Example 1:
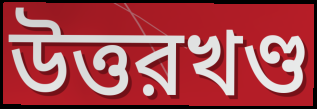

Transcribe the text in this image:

উত্তরখণ্ড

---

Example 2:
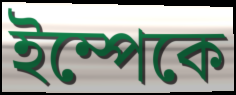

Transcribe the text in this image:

ইম্পেকে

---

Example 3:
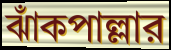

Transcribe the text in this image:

ঝাঁকপাল্লার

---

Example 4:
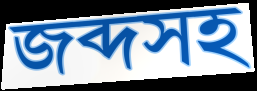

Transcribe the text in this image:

জব্দসহ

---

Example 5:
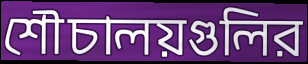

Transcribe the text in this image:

শৌচালয়গুলির